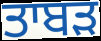
ਤਾਬੜ